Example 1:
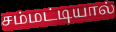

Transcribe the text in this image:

சம்மட்டியால்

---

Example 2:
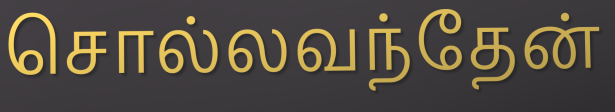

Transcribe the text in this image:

சொல்லவந்தேன்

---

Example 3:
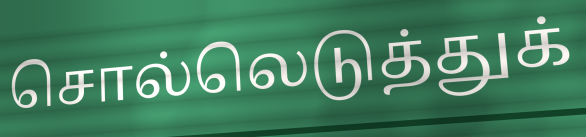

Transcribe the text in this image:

சொல்லெடுத்துக்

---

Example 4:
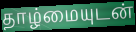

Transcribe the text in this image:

தாழ்மையுடன்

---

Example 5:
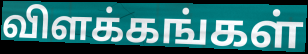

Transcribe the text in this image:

விளக்கங்கள்